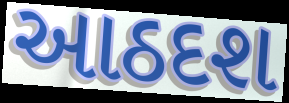
આઠદશ